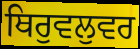
ਥਿਰੁਵਲੁਵਰ